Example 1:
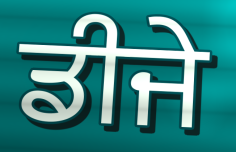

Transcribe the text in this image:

ਡੀਜੇ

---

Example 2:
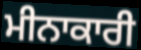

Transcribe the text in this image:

ਮੀਨਾਕਾਰੀ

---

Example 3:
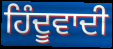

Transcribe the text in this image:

ਹਿੰਦੂਵਾਦੀ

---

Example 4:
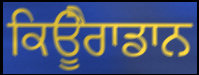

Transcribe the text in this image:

ਕਿਊੈਰਾਡਾਨ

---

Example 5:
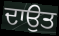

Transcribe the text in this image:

ਦਾਉਤ